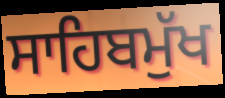
ਸਾਹਿਬਮੁੱਖ